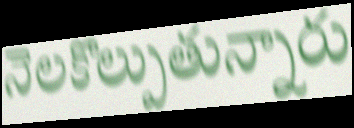
నెలకొల్పుతున్నారు